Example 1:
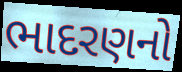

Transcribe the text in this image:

ભાદરણનો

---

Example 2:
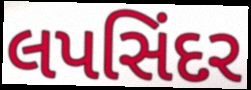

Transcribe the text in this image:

લપસિંદર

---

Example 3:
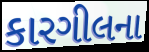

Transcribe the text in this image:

કારગીલના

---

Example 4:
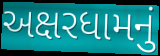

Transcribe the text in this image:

અક્ષરધામનું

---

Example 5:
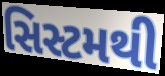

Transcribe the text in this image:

સિસ્ટમથી